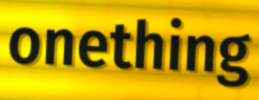
onething